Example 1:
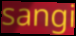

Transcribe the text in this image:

sangi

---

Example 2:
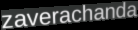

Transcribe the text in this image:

zaverachanda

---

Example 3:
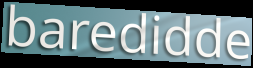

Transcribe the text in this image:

baredidde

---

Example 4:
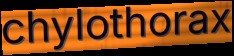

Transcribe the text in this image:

chylothorax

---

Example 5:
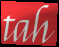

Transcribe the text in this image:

tah